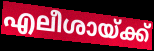
എലീശായ്ക്ക്